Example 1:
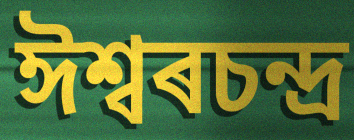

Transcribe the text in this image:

ঈশ্বৰচন্দ্ৰ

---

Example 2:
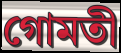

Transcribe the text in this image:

গোমতী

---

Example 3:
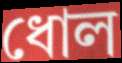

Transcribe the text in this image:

ধোল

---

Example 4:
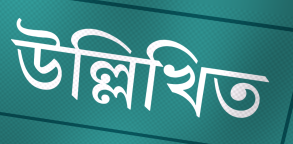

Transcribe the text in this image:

উল্লিখিত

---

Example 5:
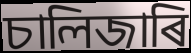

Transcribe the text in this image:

চালিজাৰি